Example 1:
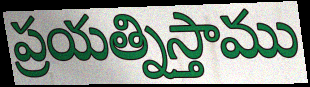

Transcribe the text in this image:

ప్రయత్నిస్తాము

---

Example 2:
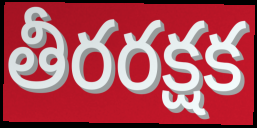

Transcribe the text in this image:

తీరరక్షక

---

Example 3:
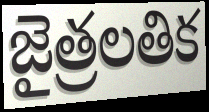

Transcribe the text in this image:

జైత్రలతిక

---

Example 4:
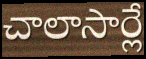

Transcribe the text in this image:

చాలాసార్లే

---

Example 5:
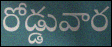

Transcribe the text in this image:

రోడ్డువార